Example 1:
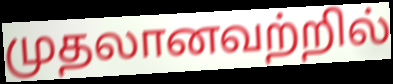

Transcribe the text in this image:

முதலானவற்றில்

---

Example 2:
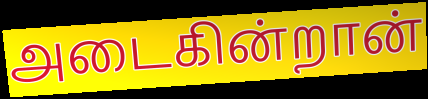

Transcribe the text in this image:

அடைகின்றான்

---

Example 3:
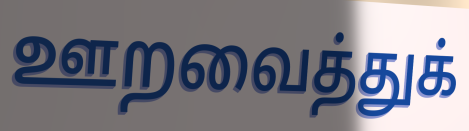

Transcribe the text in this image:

ஊறவைத்துக்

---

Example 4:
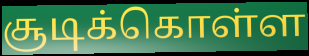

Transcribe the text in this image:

சூடிக்கொள்ள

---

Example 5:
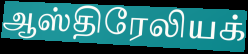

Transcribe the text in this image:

ஆஸ்திரேலியக்